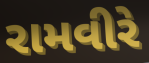
રામવીરે